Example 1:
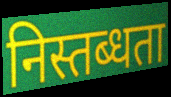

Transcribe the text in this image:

निस्तब्धता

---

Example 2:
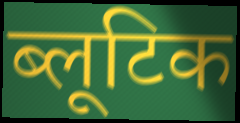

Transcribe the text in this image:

ब्लूटिक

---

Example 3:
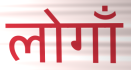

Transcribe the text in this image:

लोगाँ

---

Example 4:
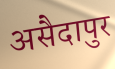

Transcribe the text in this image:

असैदापुर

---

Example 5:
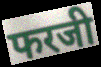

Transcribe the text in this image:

फरजी